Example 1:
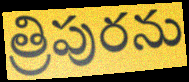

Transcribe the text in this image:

త్రిపురను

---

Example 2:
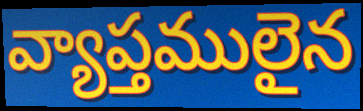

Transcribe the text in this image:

వ్యాప్తములైన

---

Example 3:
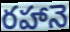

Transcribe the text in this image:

రహానె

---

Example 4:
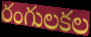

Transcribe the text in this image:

రంగులకల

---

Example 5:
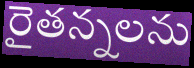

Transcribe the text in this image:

రైతన్నలను